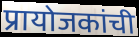
प्रायोजकांची